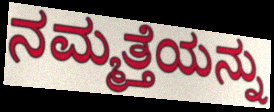
ನಮ್ಮತ್ತೆಯನ್ನು